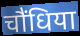
चौंधिया